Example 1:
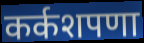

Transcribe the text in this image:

कर्कशपणा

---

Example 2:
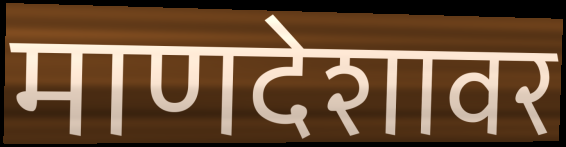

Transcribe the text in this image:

माणदेशावर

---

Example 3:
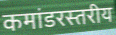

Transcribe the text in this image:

कमांडरस्तरीय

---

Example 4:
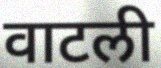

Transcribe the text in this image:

वाटली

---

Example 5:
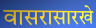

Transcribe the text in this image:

वासरासारखे